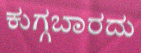
ಕುಗ್ಗಬಾರದು